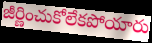
జీర్ణించుకోలేకపోయారు